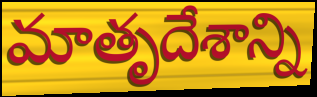
మాతృదేశాన్ని